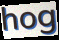
hog